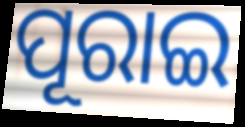
ପୂରାଇ